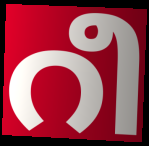
റീ